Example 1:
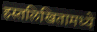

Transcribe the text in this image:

हस्तलिखितामध्ये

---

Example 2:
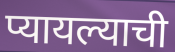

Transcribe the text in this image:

प्यायल्याची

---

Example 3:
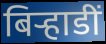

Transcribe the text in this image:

बिर्‍हाडीं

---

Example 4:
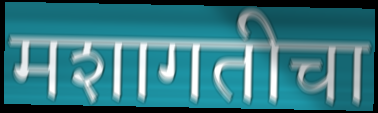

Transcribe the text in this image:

मशागतीचा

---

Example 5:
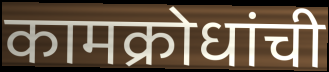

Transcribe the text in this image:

कामक्रोधांची